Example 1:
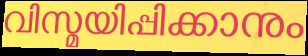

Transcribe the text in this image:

വിസ്മയിപ്പിക്കാനും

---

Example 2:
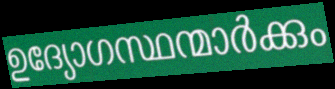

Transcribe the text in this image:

ഉദ്യോഗസ്ഥന്മാർക്കും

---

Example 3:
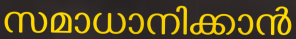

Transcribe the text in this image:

സമാധാനിക്കാൻ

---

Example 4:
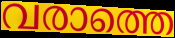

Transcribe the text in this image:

വരാത്തെ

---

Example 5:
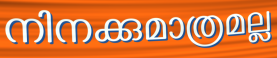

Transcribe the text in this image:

നിനക്കുമാത്രമല്ല